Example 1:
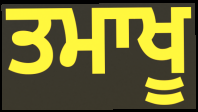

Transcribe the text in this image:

ਤਮਾਖੂ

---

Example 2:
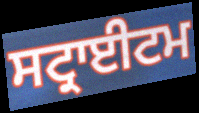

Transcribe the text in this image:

ਸਟ੍ਰਾਈਟਮ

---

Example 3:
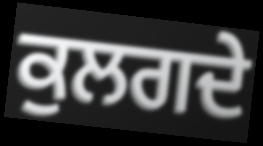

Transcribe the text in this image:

ਕੁਲਗਦੇ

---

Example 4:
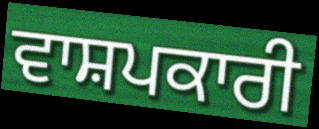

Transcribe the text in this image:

ਵਾਸ਼ਪਕਾਰੀ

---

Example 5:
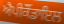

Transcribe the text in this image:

ਐਪੀਕੌਂਡਾਇਲ